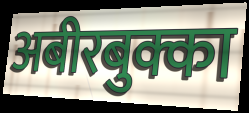
अबीरबुक्का